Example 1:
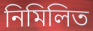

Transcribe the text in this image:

নিমিলিত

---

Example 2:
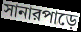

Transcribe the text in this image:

সানারপাড়ে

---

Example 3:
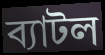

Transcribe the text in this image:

ব্যাটল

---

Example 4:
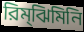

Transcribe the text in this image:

রিম্‌ঝিমিনি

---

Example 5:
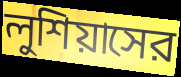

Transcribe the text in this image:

লুশিয়াসের